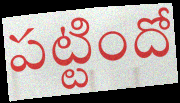
పట్టిందో